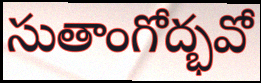
సుతాంగోద్భవో